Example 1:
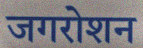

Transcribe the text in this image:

जगरोशन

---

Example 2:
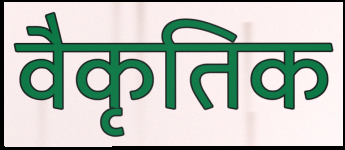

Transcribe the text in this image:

वैकृतिक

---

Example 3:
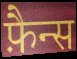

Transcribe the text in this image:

फ़ैन्स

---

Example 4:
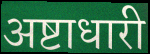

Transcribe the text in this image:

अष्टाधारी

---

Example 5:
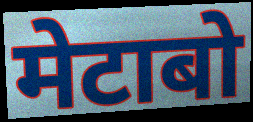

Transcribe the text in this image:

मेटाबो